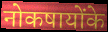
नोकषायोंके